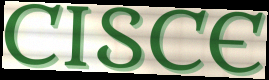
CISCE